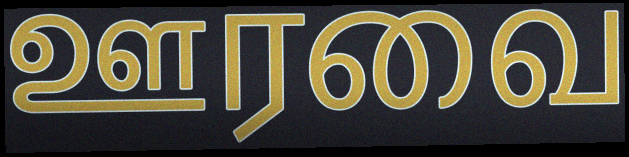
ஊரவை